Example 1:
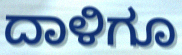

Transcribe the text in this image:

ದಾಳಿಗೂ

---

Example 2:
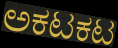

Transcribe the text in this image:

ಅಕಟಕಟ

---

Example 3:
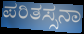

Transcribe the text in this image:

ಪರಿತಸ್ಸನಾ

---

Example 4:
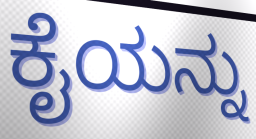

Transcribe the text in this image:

ಕೈಯನ್ನು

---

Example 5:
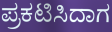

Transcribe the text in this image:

ಪ್ರಕಟಿಸಿದಾಗ